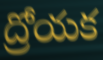
ద్రోయక